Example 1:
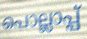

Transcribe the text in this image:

പൊല്ലാപ്പ്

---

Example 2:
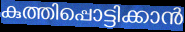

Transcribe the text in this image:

കുത്തിപ്പൊട്ടിക്കാൻ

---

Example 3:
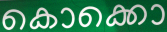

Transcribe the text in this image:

കൊക്കൊ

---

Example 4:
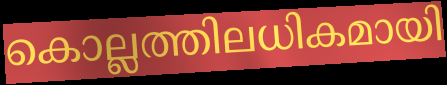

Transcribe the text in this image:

കൊല്ലത്തിലധികമായി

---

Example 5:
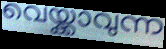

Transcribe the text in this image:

വെയ്ക്കാവുന്ന